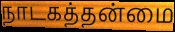
நாடகத்தன்மை